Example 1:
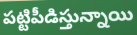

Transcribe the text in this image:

పట్టిపీడిస్తున్నాయి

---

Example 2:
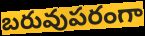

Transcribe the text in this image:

బరువుపరంగా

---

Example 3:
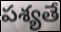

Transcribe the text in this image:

పశ్యతే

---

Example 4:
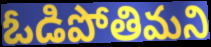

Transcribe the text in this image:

ఓడిపోతిమని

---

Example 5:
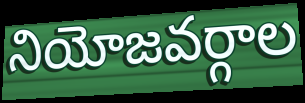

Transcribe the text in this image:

నియోజవర్గాల